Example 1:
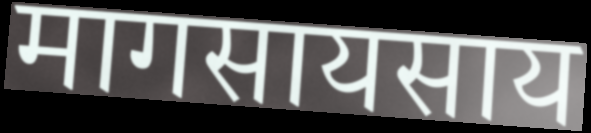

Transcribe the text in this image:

मागसायसाय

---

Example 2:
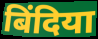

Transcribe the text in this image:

बिंदिया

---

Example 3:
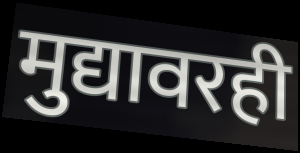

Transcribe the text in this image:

मुद्यावरही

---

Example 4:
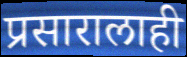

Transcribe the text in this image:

प्रसारालाही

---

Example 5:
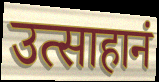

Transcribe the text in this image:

उत्साहानं